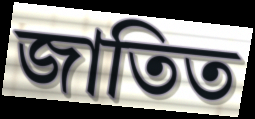
জাতিত